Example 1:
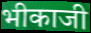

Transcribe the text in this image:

भीकाजी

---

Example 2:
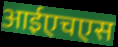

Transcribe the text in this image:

आईएचएस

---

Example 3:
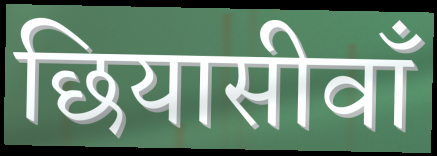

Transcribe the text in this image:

छियासीवाँ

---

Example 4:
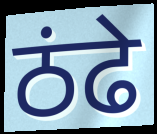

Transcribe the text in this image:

ठंढे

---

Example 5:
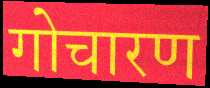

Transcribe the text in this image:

गोचारण